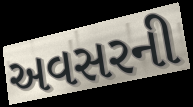
અવસરની